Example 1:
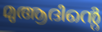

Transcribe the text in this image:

മുആദിന്റെ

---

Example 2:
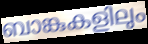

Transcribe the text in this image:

ബാങ്കുകളിലും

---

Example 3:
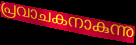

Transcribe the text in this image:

പ്രവാചകനാകുന്നു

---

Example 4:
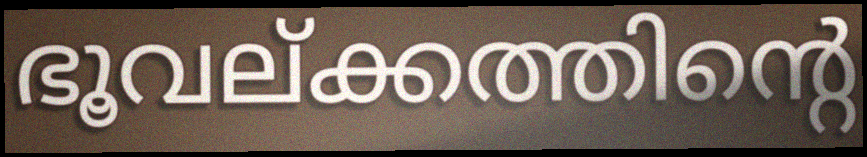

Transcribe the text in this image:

ഭൂവല്ക്കത്തിന്റെ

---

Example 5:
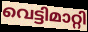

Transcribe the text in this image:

വെട്ടിമാറ്റി